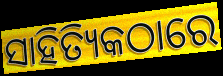
ସାହିତ୍ୟିକଠାରେ